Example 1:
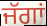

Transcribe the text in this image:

ਜੱਗਾਂ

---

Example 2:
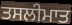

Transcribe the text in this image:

ਤਸਲੀਮਾਤ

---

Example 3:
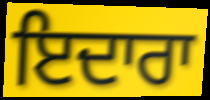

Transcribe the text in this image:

ਇਦਾਰਾ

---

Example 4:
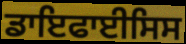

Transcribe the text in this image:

ਡਾਇਫਾਈਸਿਸ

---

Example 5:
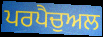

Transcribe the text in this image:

ਪਰਪੈਚੁਅਲ